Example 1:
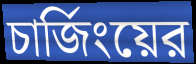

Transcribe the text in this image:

চার্জিংয়ের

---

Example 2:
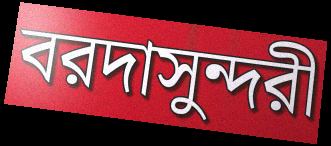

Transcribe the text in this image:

বরদাসুন্দরী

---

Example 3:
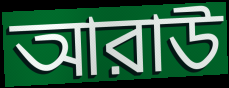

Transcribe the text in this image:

আরাউ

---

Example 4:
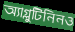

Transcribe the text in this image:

অ্যাগ্লুটিনিনও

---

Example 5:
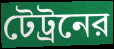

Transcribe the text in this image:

টেট্রনের